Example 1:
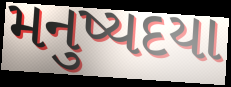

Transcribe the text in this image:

મનુષ્યદયા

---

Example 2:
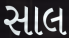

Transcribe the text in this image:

સાલ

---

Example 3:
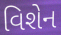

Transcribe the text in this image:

વિશેન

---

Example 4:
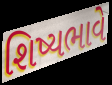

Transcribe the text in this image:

શિષ્યભાવે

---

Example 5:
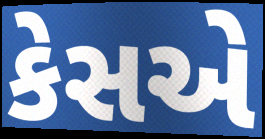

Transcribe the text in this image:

કેસએ